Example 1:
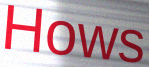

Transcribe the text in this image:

Hows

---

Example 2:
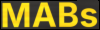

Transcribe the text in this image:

MABs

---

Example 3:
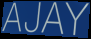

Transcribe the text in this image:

AJAY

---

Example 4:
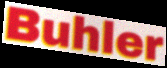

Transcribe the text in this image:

Buhler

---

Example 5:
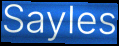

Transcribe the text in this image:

Sayles